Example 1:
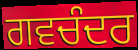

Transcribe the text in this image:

ਗਵਚੰਦਰ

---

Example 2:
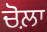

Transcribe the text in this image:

ਚੋਲ਼ਾ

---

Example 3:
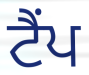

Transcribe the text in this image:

ਟੈਂਪ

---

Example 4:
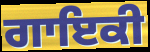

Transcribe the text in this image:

ਗਾਇਕੀ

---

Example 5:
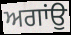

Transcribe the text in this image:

ਅਗਾਂਉ